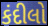
કંદીલો